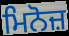
ਮਿਨੋਜ਼